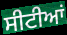
ਸੀਟੀਆਂ